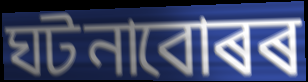
ঘটনাবোৰৰ